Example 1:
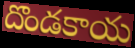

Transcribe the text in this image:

దొండకాయ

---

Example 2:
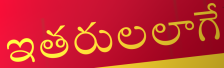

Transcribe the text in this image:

ఇతరులలాగే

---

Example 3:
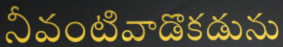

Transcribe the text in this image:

నీవంటివాడొకడును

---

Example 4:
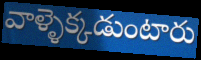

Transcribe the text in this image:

వాళ్ళెక్కడుంటారు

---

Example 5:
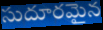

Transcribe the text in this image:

సుదూరమైన